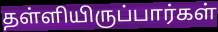
தள்ளியிருப்பார்கள்